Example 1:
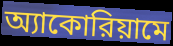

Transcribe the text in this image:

অ্যাকোরিয়ামে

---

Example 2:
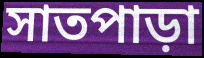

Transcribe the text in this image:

সাতপাড়া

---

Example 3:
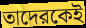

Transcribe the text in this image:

তাদেরকেই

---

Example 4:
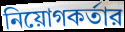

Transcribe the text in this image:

নিয়োগকর্তার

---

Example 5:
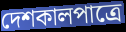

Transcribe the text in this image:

দেশকালপাত্রে